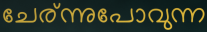
ചേര്ന്നുപോവുന്ന